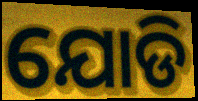
ଯୋଡି